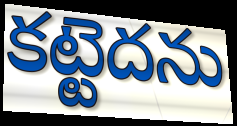
కట్టెదను